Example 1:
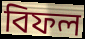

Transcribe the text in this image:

বিফল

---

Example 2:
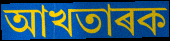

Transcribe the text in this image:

আখতাৰক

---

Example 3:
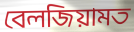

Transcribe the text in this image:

বেলজিয়ামত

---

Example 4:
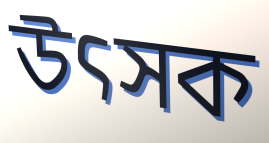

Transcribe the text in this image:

উৎসক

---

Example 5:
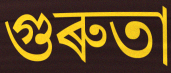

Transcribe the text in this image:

গুৰুতা